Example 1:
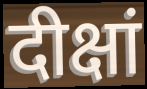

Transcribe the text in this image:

दीक्षां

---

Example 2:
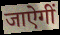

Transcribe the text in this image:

जाऐगीं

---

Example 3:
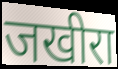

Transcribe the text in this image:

जखीरा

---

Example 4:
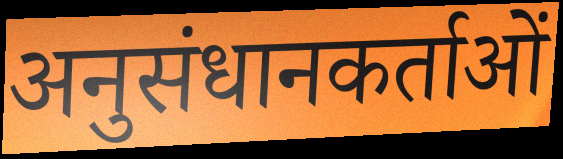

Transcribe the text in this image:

अनुसंधानकर्ताओं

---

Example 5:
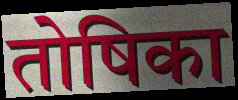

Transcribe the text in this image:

तोषिका